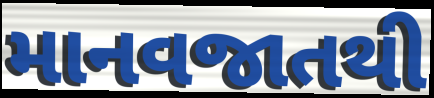
માનવજાતથી